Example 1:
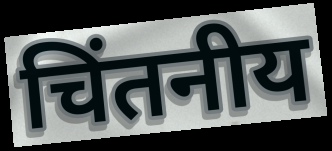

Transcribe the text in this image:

चिंतनीय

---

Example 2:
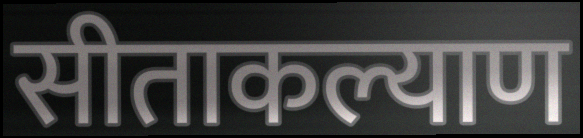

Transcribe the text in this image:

सीताकल्याण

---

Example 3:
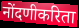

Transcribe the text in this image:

नोंदणीकरिता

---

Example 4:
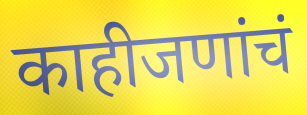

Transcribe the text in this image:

काहीजणांचं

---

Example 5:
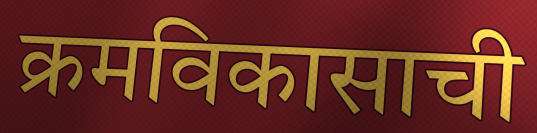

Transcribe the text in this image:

क्रमविकासाची